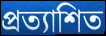
প্ৰত্যাশিত